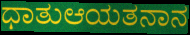
ಧಾತುಆಯತನಾನ